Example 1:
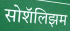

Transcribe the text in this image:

सोशॅलिझम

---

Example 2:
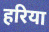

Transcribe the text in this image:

हरिया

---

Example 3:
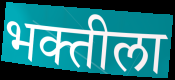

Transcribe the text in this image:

भक्तीला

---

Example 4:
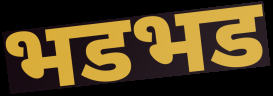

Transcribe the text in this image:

भडभड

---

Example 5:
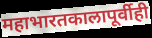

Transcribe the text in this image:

महाभारतकालापूर्वीही